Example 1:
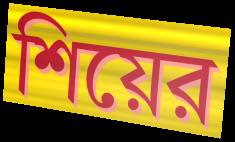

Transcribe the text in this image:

শিয়ের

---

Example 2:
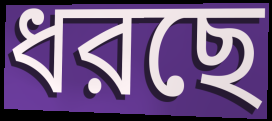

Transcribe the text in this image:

ধরছে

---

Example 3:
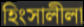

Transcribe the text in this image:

হিংসালীলা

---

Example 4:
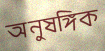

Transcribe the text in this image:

অনুষঙ্গিক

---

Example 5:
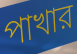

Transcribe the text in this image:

পাখার